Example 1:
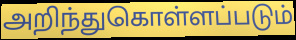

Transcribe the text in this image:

அறிந்துகொள்ளப்படும்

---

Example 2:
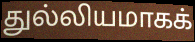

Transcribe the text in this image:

துல்லியமாகக்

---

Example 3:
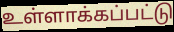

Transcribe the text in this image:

உள்ளாக்கப்பட்டு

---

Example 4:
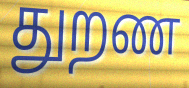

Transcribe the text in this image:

துறண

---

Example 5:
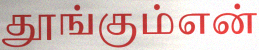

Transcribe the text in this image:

தூங்கும்என்